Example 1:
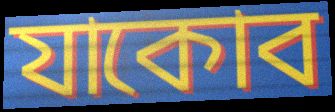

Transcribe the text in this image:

যাকোব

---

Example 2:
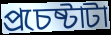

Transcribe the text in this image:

প্রচেষ্টাটা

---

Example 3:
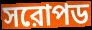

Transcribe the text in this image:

সরোপড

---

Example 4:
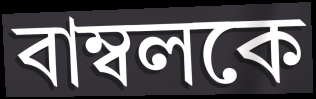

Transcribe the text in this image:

বাম্বলকে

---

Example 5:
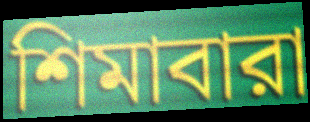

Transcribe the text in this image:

শিমাবারা